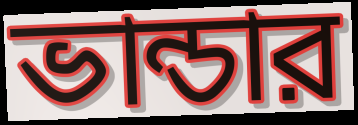
ভান্ডার